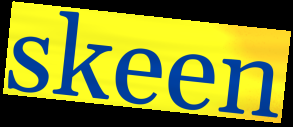
skeen